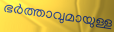
ഭർത്താവുമായുള്ള